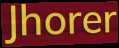
Jhorer